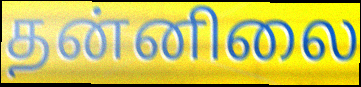
தன்னிலை